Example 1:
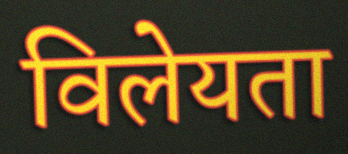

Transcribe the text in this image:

विलेयता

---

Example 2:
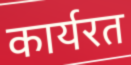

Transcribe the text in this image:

कार्यरत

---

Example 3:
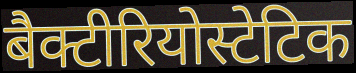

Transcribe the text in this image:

बैक्टीरियोस्टेटिक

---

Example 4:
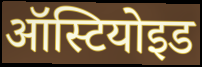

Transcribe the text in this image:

ऑस्टियोइड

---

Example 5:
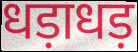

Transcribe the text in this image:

धड़ाधड़